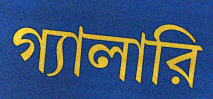
গ্যালারি